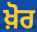
ਖ਼ੋਰ